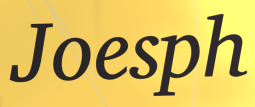
Joesph